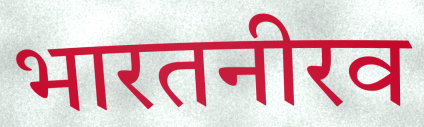
भारतनीरव